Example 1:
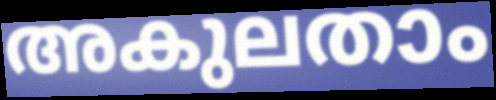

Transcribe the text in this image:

അകുലതാം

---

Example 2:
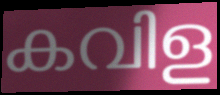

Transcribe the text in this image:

കവിള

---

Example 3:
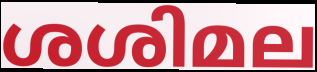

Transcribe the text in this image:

ശശിമല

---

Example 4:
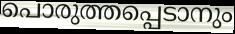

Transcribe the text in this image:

പൊരുത്തപ്പെടാനും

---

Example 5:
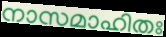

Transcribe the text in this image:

നാസമാഹിതഃ